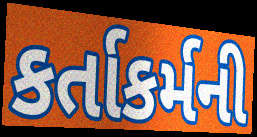
કર્તાકર્મની